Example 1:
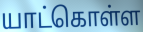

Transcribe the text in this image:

யாட்கொள்ள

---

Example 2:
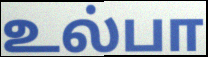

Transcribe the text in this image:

உல்பா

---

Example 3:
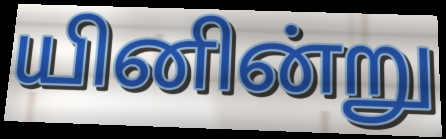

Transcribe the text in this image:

யினின்று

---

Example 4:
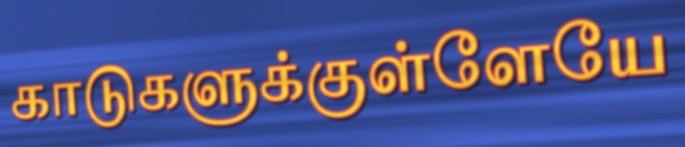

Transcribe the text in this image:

காடுகளுக்குள்ளேயே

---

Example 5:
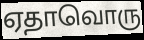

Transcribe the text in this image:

ஏதாவொரு